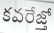
కవరేజ్తో